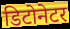
डिटोनेटर